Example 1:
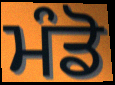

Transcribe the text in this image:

ਮੰਡੋ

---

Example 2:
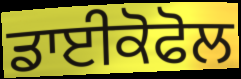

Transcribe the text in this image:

ਡਾਈਕੋਫੋਲ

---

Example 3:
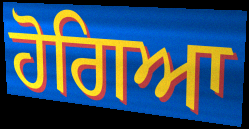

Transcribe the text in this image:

ਹੋਗਿਆ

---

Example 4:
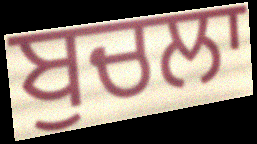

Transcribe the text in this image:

ਬੁਚਲਾ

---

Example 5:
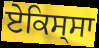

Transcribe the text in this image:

ਏਕਿਸ੍ਸਾ